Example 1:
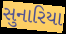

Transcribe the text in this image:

સુનારિયા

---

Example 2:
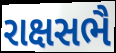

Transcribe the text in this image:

રાક્ષસભૈ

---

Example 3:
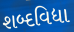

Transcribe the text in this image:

શબ્દવિદ્યા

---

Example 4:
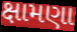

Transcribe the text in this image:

ક્ષામણા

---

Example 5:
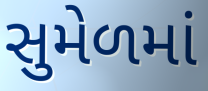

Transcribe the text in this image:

સુમેળમાં